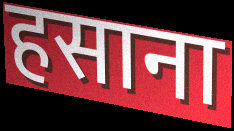
हसाना